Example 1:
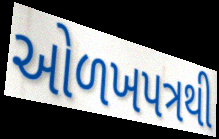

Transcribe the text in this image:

ઓળખપત્રથી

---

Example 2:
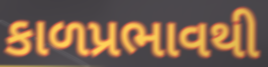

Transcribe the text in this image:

કાળપ્રભાવથી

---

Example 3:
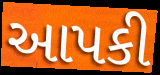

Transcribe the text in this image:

આપકી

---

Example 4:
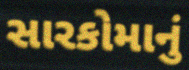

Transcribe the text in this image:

સારકોમાનું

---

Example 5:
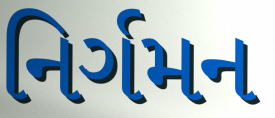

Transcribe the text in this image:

નિર્ગમન